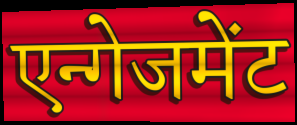
एन्गेजमेंट